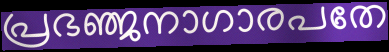
പ്രഭഞ്ജനാഗാരപതേ